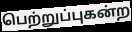
பெற்றுப்புகன்ற